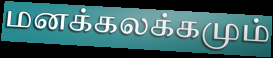
மனக்கலக்கமும்